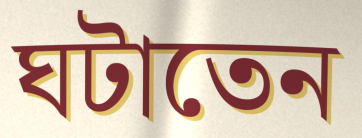
ঘটাতেন